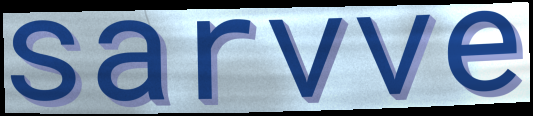
sarvve